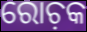
ରୋଚ଼କ